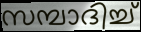
സമ്പാദിച്ച്